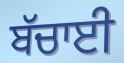
ਬੱਚਾਈ